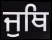
ਜੁਥਿ